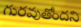
గురవుతోందని